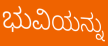
ಭುವಿಯನ್ನು